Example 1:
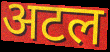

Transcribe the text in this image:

अटल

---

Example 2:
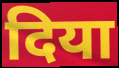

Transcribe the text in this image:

दिया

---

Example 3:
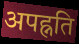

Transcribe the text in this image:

अपह्नति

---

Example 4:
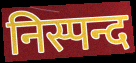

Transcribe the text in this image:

निस्पन्द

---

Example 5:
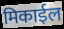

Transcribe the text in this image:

मिकाईल